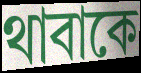
থাবাকে